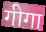
गीगा